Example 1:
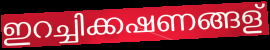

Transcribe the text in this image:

ഇറച്ചിക്കഷണങ്ങള്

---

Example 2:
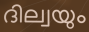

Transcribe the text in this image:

ദില്വയും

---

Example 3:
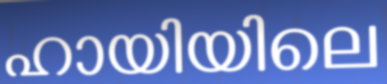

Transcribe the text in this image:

ഹായിയിലെ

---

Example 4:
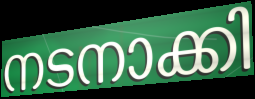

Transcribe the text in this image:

നടനാക്കി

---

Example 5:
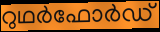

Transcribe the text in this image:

റുഥർഫോർഡ്